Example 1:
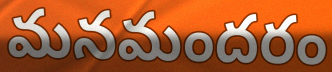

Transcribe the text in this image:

మనమందరం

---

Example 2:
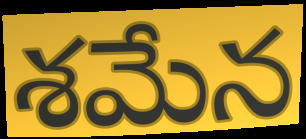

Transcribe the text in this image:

శమేన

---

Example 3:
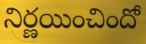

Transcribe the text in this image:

నిర్ణయించిందో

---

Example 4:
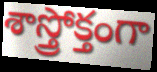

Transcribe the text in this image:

శాస్త్రోక్తంగా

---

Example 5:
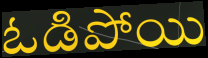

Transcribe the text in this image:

ఓడిపోయి